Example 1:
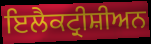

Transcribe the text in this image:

ਇਲੈਕਟ੍ਰੀਸ਼ੀਅਨ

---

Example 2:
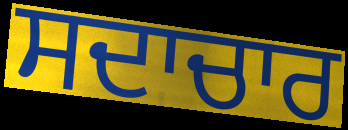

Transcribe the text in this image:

ਸਦਾਚਾਰ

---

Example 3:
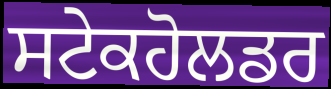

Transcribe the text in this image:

ਸਟੇਕਹੋਲਡਰ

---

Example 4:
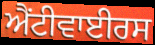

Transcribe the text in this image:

ਐਂਟੀਵਾਈਰਸ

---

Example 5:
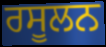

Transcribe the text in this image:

ਰਸੂਲਨ